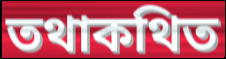
তথাকথিত